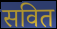
सवित